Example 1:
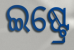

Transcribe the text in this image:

ଇଷ୍ଟ୍ରେ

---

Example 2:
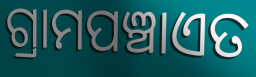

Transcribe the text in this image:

ଗ୍ରାମପଞ୍ଚାଏତ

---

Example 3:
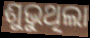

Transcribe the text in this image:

ଶୁଭୁଥିଲା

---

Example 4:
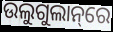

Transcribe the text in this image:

ଉଲୁଗୁଲାନ୍‌ରେ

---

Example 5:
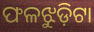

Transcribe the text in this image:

ଫଳଝୁଡ଼ିଟା